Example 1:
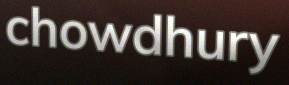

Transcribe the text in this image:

chowdhury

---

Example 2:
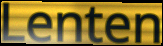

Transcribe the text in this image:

Lenten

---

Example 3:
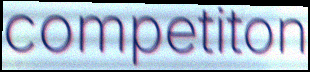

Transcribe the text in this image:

competiton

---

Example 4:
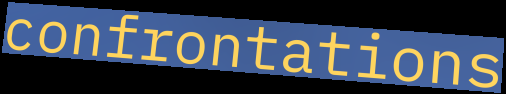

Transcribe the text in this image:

confrontations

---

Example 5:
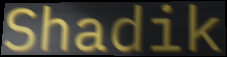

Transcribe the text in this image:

Shadik